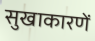
सुखाकारणें